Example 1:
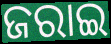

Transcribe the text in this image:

ଜରାଇ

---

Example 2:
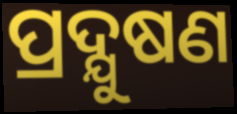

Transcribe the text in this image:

ପ୍ରଦ୍ଯୁଷଣ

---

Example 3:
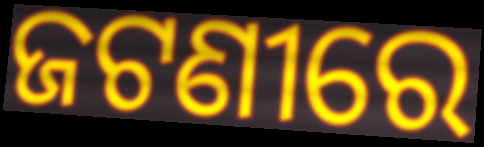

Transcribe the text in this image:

ଜଟଣୀରେ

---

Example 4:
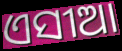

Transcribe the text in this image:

ଏସୀଆ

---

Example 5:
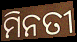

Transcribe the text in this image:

ମିନତୀ